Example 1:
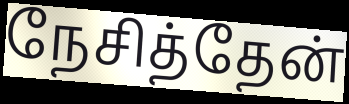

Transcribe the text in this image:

நேசித்தேன்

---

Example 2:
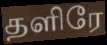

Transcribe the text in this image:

தளிரே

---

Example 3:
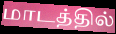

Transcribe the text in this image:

மாடத்தில்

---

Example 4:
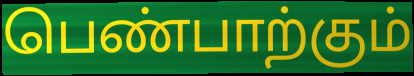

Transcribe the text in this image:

பெண்பாற்கும்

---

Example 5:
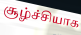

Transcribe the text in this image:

சூழ்ச்சியாக